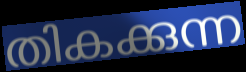
തികക്കുന്ന